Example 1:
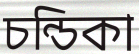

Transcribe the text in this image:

চন্ডিকা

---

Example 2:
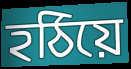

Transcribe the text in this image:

হঠিয়ে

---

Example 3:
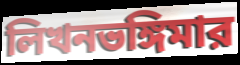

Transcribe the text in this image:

লিখনভঙ্গিমার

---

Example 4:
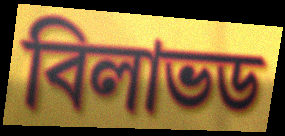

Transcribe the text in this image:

বিলাভড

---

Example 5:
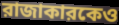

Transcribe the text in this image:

রাজাকারকেও